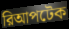
রিআপটেক